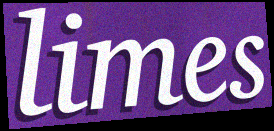
limes